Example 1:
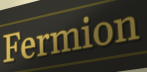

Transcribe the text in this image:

Fermion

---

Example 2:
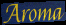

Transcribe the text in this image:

Aroma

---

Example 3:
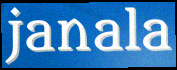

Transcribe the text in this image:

janala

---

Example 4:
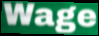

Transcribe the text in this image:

Wage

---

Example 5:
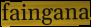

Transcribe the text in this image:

faingana